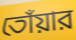
তোঁয়ার